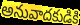
అనువాదకుడికి